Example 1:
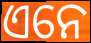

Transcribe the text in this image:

ଏନେ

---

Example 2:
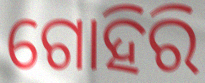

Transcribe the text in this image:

ଗୋହିରି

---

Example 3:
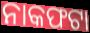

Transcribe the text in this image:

ନାକଫଟା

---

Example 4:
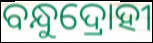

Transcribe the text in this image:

ବନ୍ଧୁଦ୍ରୋହୀ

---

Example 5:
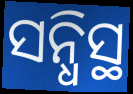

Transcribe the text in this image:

ସନ୍ଧିସ୍ଥ